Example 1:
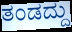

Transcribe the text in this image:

ತಂಡದ್ದು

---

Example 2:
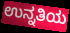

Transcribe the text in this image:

ಉನ್ನತಿಯ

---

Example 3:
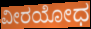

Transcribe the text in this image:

ವೀರಯೋಧ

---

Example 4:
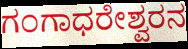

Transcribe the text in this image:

ಗಂಗಾಧರೇಶ್ವರನ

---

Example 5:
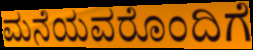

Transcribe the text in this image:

ಮನೆಯವರೊಂದಿಗೆ